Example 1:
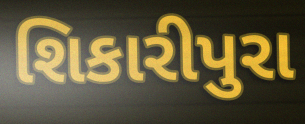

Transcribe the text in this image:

શિકારીપુરા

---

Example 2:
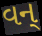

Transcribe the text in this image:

વન્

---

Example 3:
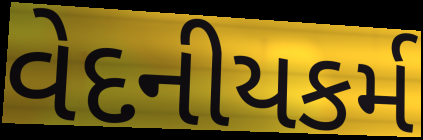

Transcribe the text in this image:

વેદનીયકર્મ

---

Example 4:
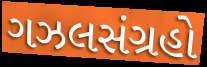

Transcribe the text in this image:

ગઝલસંગ્રહો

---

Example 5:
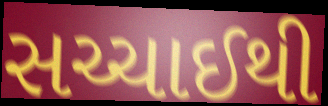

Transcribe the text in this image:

સચ્ચાઈથી